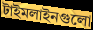
টাইমলাইনগুলো